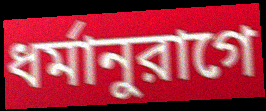
ধর্মানুরাগে